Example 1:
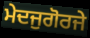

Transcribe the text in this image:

ਮੇਦਜੁਗੋਰਜੇ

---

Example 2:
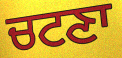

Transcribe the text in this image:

ਚਟਣਾ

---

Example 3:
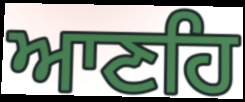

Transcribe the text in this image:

ਆਣਹਿ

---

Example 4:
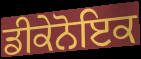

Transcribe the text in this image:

ਡੀਕੇਨੋਇਕ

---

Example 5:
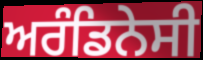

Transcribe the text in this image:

ਅਰੰਡਿਨੇਸੀ